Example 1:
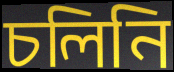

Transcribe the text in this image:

চলিনি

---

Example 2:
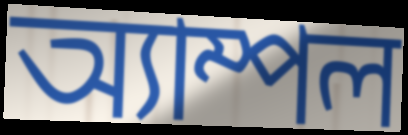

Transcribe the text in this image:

অ্যাম্পল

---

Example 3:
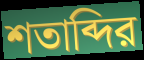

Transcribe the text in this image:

শতাব্দির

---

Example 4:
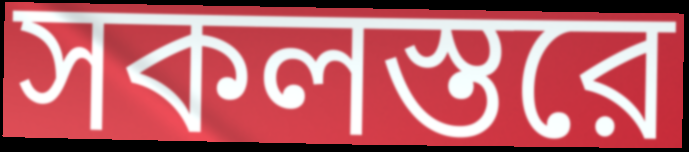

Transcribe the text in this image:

সকলস্তরে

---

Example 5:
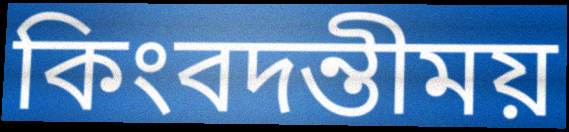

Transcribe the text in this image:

কিংবদন্তীময়